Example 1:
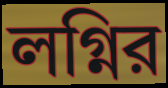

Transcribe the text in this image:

লগ্নির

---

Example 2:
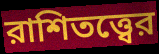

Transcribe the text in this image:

রাশিতত্ত্বের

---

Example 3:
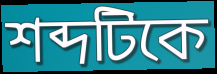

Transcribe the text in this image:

শব্দটিকে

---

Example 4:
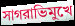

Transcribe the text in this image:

সাগরাভিমুখে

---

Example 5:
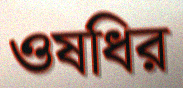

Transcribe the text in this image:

ওষধির